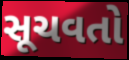
સૂચવતો